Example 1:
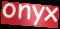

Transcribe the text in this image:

onyx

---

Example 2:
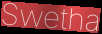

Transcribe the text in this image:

Swetha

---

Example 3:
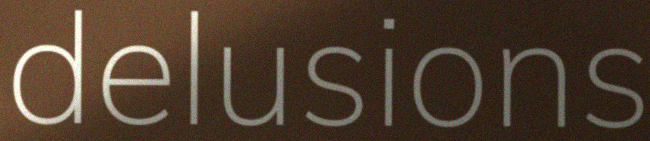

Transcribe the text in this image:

delusions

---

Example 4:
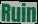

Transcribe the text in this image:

Ruin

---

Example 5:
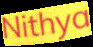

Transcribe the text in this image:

Nithya